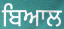
ਬਿਆਲ